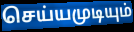
செய்யமுடியும்